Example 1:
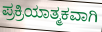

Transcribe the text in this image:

ಪ್ರಕ್ರಿಯಾತ್ಮಕವಾಗಿ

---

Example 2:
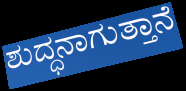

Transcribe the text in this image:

ಶುದ್ಧನಾಗುತ್ತಾನೆ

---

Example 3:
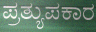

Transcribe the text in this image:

ಪ್ರತ್ಯುಪಕಾರ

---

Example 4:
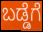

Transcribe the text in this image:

ಬಡ್ಡೆಗೆ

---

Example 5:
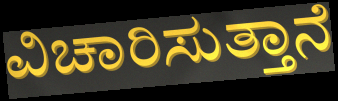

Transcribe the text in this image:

ವಿಚಾರಿಸುತ್ತಾನೆ